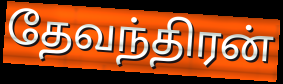
தேவந்திரன்